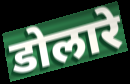
डोलारे